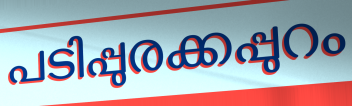
പടിപ്പുരക്കപ്പുറം